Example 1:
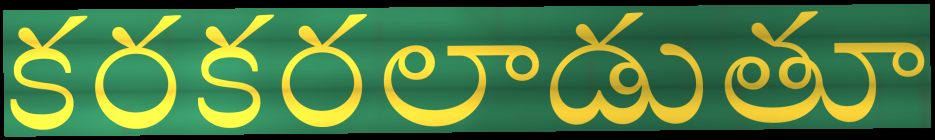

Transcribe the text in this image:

కరకరలాడుతూ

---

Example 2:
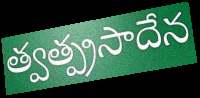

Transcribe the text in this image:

త్వత్ప్రసాదేన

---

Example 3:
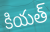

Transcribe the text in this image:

కియత్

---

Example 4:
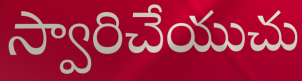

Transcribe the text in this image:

స్వారిచేయుచు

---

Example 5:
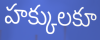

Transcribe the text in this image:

హక్కులకూ